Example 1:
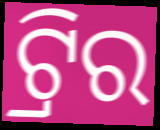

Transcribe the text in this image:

ଟ୍ରିର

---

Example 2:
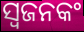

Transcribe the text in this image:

ସ୍ଵଜନକଂ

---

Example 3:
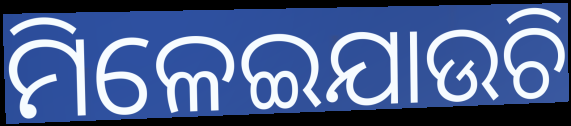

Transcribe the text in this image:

ମିଳେଇଯାଉଚି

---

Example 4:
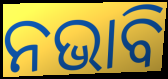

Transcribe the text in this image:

ନଭାବି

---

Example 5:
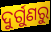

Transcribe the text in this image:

ଦୁର୍ଗୁଣରୁ